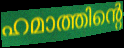
ഹമാത്തിന്റെ